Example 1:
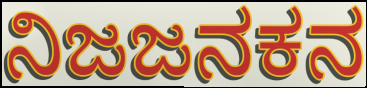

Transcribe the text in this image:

ನಿಜಜನಕನ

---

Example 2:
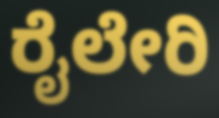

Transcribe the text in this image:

ರೈಲೇರಿ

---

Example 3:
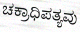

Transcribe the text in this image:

ಚಕ್ರಾಧಿಪತ್ಯವು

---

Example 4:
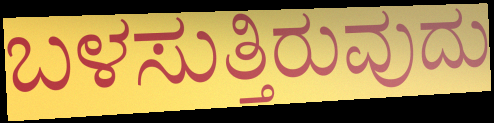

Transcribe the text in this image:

ಬಳಸುತ್ತಿರುವುದು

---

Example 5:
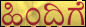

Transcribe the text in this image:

ಹಿಂದಿಗೆ